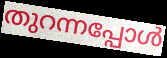
തുറന്നപ്പോൾ